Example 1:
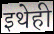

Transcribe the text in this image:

इथेही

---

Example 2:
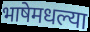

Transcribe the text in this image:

भाषेमधल्या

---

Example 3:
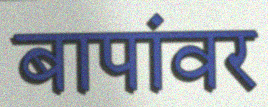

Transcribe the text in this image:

बापांवर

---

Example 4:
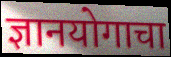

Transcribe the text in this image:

ज्ञानयोगाचा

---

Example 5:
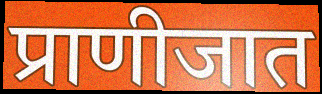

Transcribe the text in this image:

प्राणीजात